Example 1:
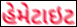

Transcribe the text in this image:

હેમેટાઇટ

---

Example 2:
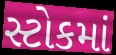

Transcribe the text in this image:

સ્ટોકમાં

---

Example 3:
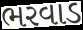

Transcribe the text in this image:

ભરવાડ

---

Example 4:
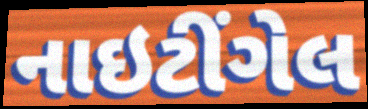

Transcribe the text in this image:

નાઇટીંગેલ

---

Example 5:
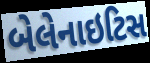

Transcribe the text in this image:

બેલેનાઇટિસ